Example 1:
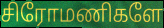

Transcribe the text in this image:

சிரோமணிகளே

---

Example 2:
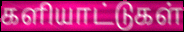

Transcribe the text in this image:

களியாட்டுகள்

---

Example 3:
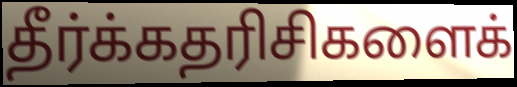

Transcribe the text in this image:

தீர்க்கதரிசிகளைக்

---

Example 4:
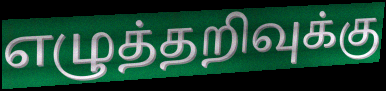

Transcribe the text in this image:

எழுத்தறிவுக்கு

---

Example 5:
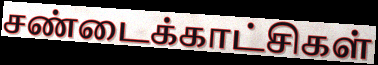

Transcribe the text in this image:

சண்டைக்காட்சிகள்